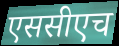
एससीएच